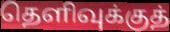
தெளிவுக்குத்